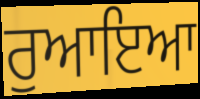
ਰੁਆਇਆ